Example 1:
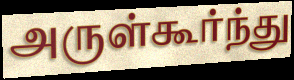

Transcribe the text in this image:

அருள்கூர்ந்து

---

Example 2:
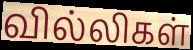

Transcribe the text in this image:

வில்லிகள்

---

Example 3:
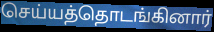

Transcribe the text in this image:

செய்யத்தொடங்கினார்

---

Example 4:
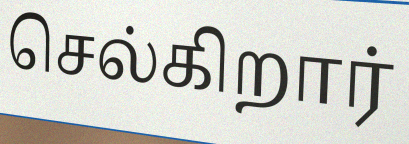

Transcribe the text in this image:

செல்கிறார்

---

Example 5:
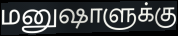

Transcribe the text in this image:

மனுஷாளுக்கு